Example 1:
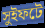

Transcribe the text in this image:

সুইফটে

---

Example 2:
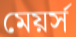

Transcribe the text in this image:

মেয়র্স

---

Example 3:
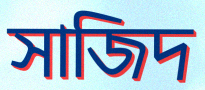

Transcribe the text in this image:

সাজিদ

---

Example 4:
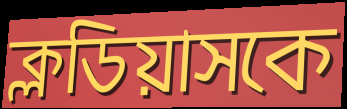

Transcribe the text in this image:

ক্লডিয়াসকে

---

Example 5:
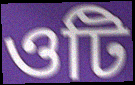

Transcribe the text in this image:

ওটি